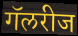
गॅलरीज